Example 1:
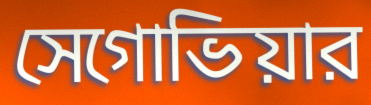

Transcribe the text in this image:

সেগোভিয়ার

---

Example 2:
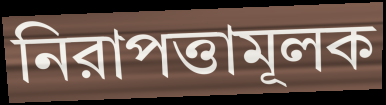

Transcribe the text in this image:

নিরাপত্তামূলক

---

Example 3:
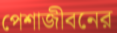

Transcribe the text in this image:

পেশাজীবনের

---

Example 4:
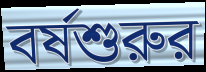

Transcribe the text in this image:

বর্ষশুরুর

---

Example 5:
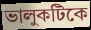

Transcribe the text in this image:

ভালুকটিকে